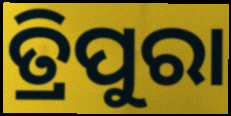
ତ୍ରିପୁରା